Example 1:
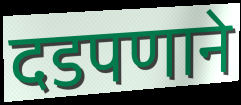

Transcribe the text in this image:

दडपणाने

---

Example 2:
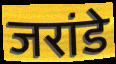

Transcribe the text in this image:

जरांडे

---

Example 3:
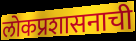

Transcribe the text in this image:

लोकप्रशासनाची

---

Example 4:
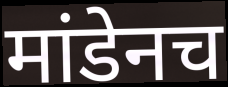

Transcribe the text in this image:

मांडेनच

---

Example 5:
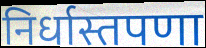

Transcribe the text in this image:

निर्धास्तपणा